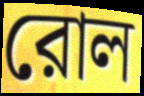
রোল